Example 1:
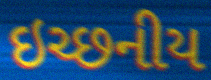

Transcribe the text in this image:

ઇચ્છનીય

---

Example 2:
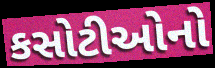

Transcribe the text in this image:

કસોટીઓનો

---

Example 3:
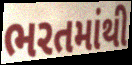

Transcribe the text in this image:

ભરતમાંથી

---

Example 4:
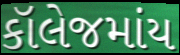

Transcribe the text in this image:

કૉલેજમાંય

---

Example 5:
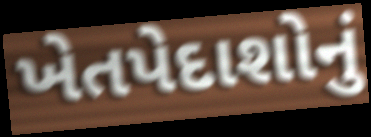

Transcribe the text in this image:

ખેતપેદાશોનું